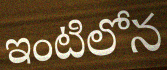
ఇంటిలోన